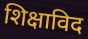
शिक्षाविद